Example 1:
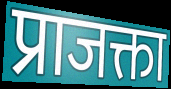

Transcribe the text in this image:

प्राजक्ता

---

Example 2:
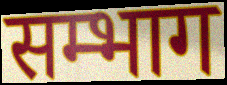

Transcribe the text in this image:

सम्भाग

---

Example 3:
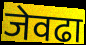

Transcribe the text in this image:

जेवढा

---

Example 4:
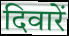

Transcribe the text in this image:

दिवारें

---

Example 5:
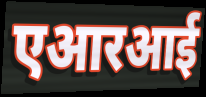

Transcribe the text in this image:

एआरआई